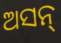
ଅସନ୍